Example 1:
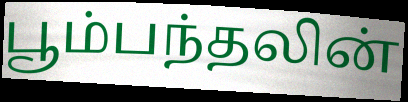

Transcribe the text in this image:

பூம்பந்தலின்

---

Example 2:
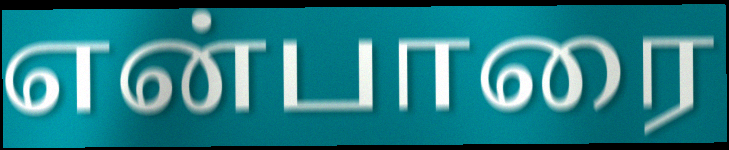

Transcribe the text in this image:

என்பாரை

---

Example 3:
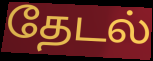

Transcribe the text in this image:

தேடல்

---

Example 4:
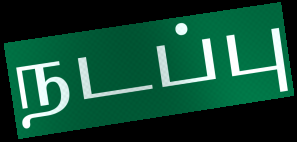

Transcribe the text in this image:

நடப்பு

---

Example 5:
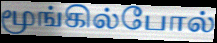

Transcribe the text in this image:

மூங்கில்போல்